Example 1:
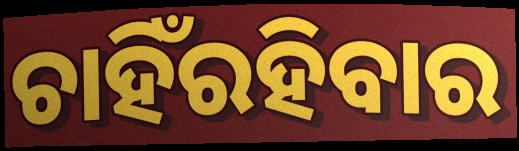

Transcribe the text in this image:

ଚାହିଁରହିବାର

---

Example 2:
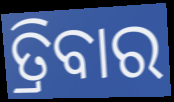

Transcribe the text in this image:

ତ୍ରିବାର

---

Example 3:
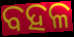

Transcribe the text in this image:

ବହଳ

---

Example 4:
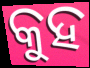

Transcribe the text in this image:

କୁହ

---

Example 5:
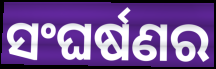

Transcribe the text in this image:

ସଂଘର୍ଷଣର